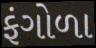
ફંગોળા